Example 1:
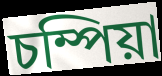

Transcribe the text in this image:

চম্পিয়া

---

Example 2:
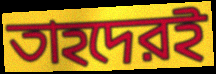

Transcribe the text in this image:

তাহদেরই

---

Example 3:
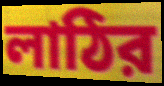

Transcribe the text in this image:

লাঠির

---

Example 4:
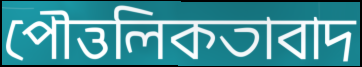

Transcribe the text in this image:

পৌত্তলিকতাবাদ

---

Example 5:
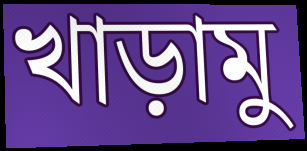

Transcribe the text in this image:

খাড়ামু